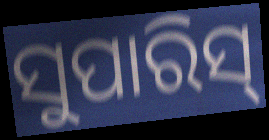
ସୁପାରିସ୍